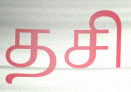
தசி